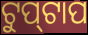
ଟୁପ୍‌ଟାପ